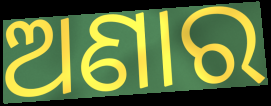
ଅଣାର